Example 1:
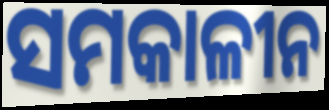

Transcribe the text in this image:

ସମକାଳୀନ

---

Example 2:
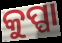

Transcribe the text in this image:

କୁପ୍ପା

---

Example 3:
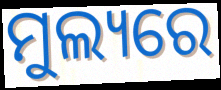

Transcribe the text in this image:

ମୁଲ୍ୟରେ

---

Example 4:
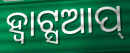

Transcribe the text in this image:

ହ୍ବାଟ୍ସଆପ୍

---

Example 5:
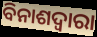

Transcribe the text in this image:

ବିନାଶଦ୍ଵାରା